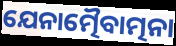
ଯେନାତ୍ମୈବାତ୍ମନା